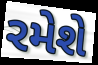
રમેશે